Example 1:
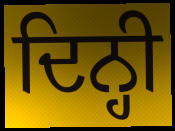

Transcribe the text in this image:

ਦਿਨ੍ਹੀ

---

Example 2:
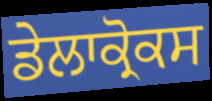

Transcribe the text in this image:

ਡੇਲਾਕ੍ਰੋਕਸ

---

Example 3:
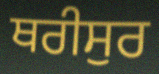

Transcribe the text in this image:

ਥਰੀਸੁਰ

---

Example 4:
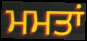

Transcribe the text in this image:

ਮਮਤਾਂ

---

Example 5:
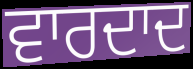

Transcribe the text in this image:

ਵਾਰਦਾਦ